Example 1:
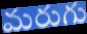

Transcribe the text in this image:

మరుగు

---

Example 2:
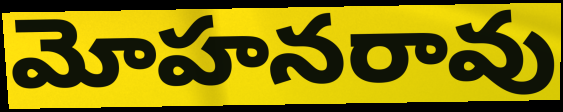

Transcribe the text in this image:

మోహనరావు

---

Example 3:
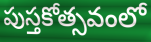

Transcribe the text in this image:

పుస్తకోత్సవంలో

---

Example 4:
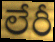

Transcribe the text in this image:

లేరీ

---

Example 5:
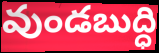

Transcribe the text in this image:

వుండబుద్ధి